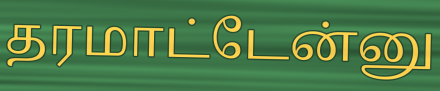
தரமாட்டேன்னு